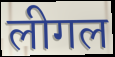
लीगल